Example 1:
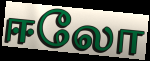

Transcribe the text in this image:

ஈலோ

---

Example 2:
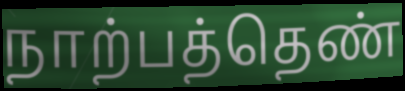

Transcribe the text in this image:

நாற்பத்தெண்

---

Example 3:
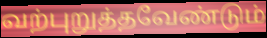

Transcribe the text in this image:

வற்புறுத்தவேண்டும்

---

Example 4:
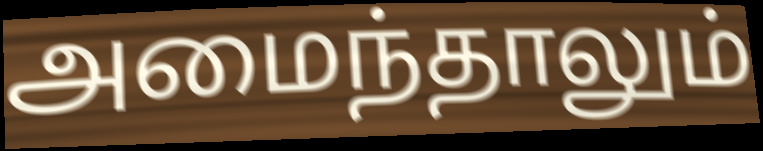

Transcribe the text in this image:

அமைந்தாலும்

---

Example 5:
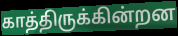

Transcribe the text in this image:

காத்திருக்கின்றன